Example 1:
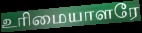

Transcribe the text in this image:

உரிமையாளரே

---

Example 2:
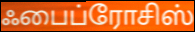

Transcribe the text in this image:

ஃபைப்ரோசிஸ்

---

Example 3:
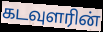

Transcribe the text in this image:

கடவுளரின்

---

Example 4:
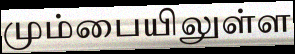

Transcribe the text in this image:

மும்பையிலுள்ள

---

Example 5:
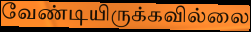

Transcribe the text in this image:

வேண்டியிருக்கவில்லை